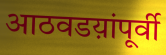
आठवडय़ांपूर्वी